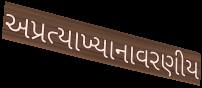
અપ્રત્યાખ્યાનાવરણીય